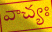
వాచ్యః